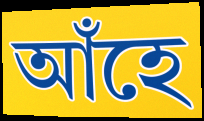
আঁহে